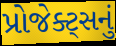
પ્રોજેક્ટ્સનું